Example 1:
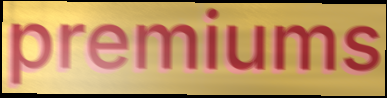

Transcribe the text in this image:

premiums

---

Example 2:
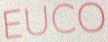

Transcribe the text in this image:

EUCO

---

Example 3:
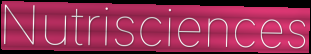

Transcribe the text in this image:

Nutrisciences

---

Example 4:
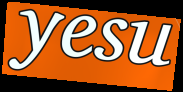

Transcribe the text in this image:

yesu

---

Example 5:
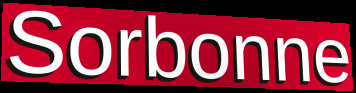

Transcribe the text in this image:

Sorbonne